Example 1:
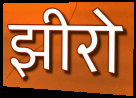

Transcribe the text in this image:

झीरो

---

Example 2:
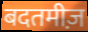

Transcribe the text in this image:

बदतमीज़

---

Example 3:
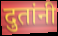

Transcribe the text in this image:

दुतांनी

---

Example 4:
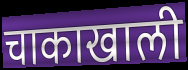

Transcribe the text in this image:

चाकाखाली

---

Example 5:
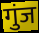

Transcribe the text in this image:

गुंज